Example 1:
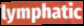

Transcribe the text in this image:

lymphatic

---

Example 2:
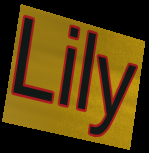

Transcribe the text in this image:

Lily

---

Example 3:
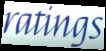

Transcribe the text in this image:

ratings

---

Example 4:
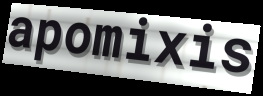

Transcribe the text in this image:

apomixis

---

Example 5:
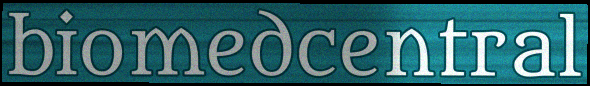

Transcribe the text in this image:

biomedcentral